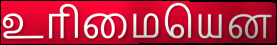
உரிமையென